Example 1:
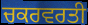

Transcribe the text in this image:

ਚਕਰਵਰਤੀ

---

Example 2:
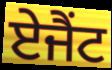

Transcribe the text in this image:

ਏਜੈਂਟ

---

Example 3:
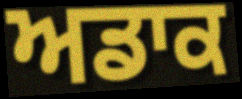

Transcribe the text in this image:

ਅਡਾਕ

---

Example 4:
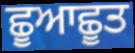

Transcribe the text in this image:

ਛੂਆਛੂਤ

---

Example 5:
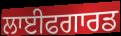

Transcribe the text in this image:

ਲਾਈਫਗਾਰਡ